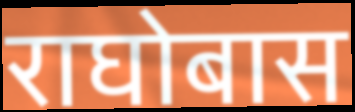
राघोबास